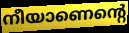
നീയാണെന്റെ